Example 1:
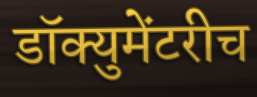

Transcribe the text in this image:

डॉक्युमेंटरीच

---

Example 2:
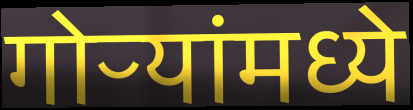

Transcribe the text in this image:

गोऱ्यांमध्ये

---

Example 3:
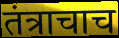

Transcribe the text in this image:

तंत्राचाच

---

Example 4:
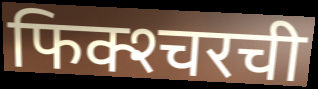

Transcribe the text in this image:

फिक्श्चरची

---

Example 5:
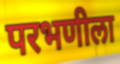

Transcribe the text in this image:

परभणीला